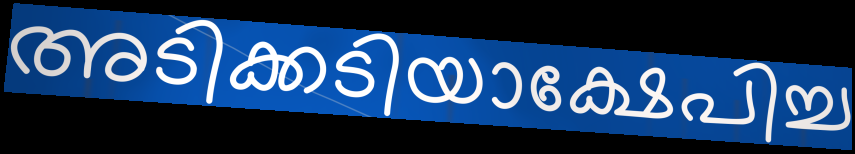
അടിക്കടിയാക്ഷേപിച്ച